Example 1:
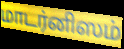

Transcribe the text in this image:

மாடர்னிஸம்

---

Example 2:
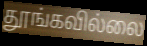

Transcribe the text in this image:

தூங்கவில்லை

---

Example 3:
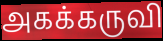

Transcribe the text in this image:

அகக்கருவி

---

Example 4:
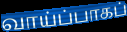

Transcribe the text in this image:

வாய்ப்பாகப்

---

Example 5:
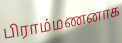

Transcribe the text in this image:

பிராம்மணனாக